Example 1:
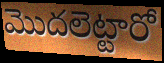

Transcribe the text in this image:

మొదలెట్టారో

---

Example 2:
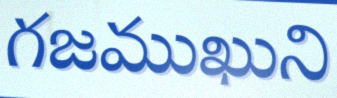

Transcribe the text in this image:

గజముఖుని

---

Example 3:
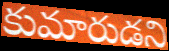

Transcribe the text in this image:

కుమారుడని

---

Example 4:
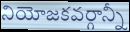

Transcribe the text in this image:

నియోజకవర్గాన్నీ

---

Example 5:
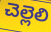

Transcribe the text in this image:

చెల్లెలి